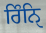
ਰਿੰਨਿੑ